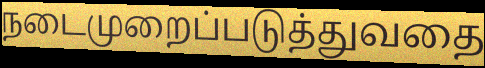
நடைமுறைப்படுத்துவதை